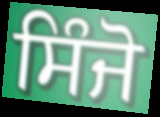
ਸਿੰਜੋ